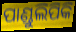
ପାଣ୍ଡୁଲିପିକି